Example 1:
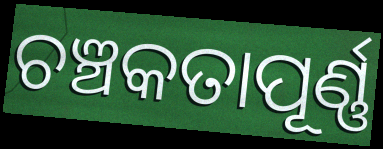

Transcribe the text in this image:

ଚଞ୍ଚକତାପୂର୍ଣ୍ଣ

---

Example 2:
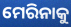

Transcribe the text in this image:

ମେରିନାକୁ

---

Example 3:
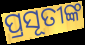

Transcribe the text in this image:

ପ୍ରସୂତୀଙ୍କ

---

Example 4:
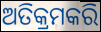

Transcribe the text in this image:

ଅତିକ୍ରମକରି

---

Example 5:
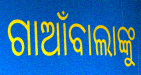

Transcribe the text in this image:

ଗାଆଁବାଲାଙ୍କୁ